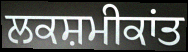
ਲਕਸ਼ਮੀਕਾਂਤ